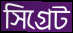
সিগ্রেট